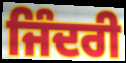
ਜਿੰਦਰੀ